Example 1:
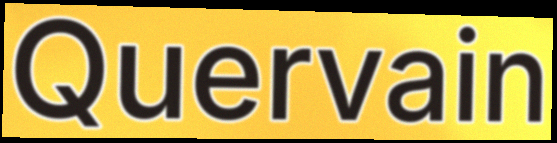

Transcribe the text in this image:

Quervain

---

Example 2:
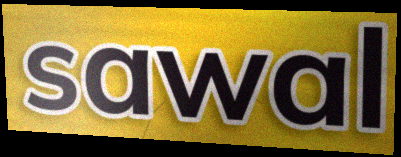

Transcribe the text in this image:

sawal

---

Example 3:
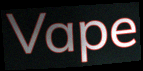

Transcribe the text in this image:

Vape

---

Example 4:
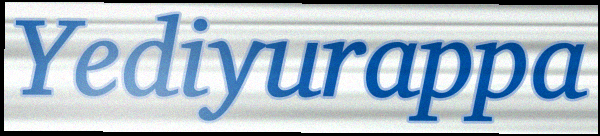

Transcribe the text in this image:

Yediyurappa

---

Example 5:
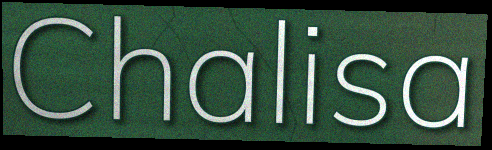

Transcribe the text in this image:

Chalisa